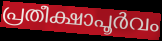
പ്രതീക്ഷാപൂർവം